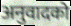
अनुवादको